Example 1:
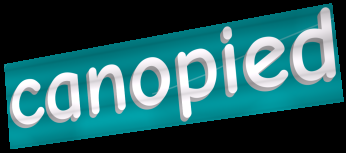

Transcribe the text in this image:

canopied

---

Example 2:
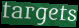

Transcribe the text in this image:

targets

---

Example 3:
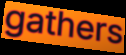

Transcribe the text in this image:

gathers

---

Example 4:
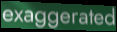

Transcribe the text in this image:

exaggerated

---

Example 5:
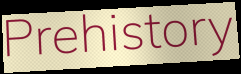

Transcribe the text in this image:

Prehistory